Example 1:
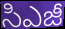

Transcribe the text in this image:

సిఎజీ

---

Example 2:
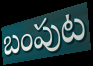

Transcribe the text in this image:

బంపుట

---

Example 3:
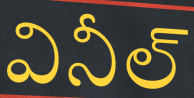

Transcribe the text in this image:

వినీల్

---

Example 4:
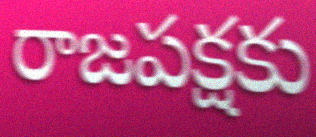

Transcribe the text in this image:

రాజపక్షకు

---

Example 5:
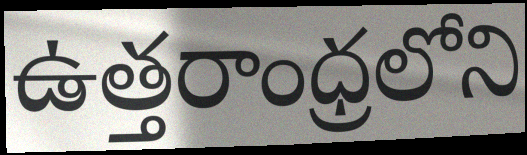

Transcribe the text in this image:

ఉత్తరాంధ్రలోని